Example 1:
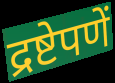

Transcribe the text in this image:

द्रष्टेपणें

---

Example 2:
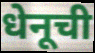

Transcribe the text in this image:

धेनूची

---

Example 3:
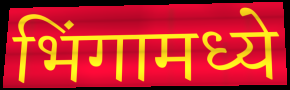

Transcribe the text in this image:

भिंगामध्ये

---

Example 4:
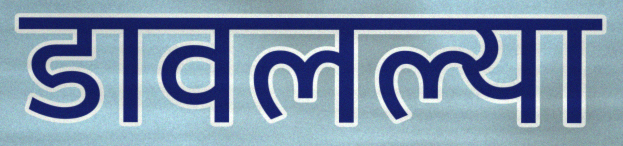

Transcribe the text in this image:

डावलल्या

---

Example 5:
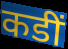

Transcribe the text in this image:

कडीं